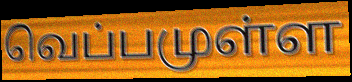
வெப்பமுள்ள